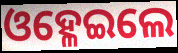
ଓହ୍ଳେଇଲେ